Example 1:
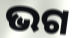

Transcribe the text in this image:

ଭଗ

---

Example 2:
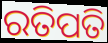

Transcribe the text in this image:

ରତିପତି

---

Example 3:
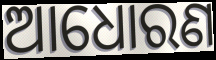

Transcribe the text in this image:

ଆଧୋରଣ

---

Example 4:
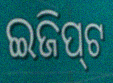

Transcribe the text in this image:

ଇଜିପ୍‌ଟ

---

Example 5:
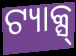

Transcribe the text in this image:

ଟ୍ୟାକ୍ସ୍